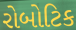
રોબોટિક